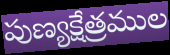
పుణ్యక్షేత్రముల